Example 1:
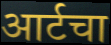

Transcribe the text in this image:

आर्टचा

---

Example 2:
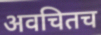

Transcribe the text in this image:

अवचितच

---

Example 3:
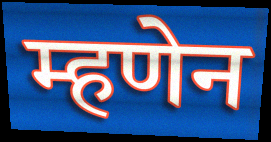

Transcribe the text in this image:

म्हणेन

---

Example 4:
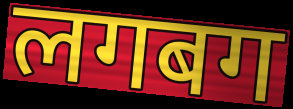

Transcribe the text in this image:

लगबग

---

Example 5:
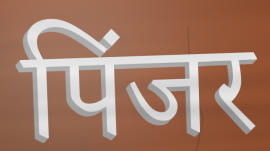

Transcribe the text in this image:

पिंजर